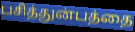
பசித்துன்பத்தை